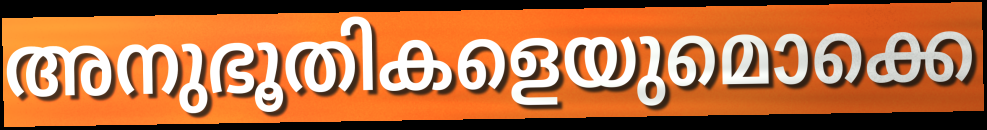
അനുഭൂതികളെയുമൊക്കെ